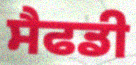
ਸੈਫਡੀ